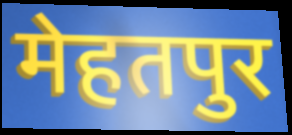
मेहतपुर